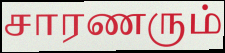
சாரணரும்